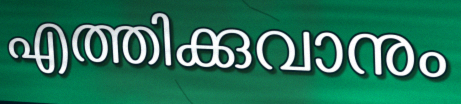
എത്തിക്കുവാനും